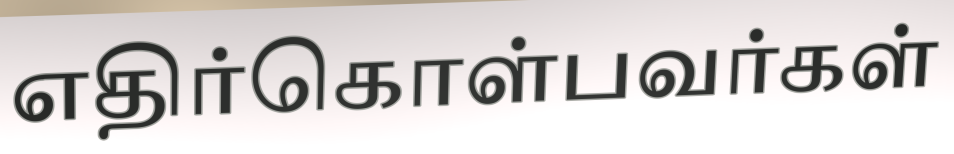
எதிர்கொள்பவர்கள்